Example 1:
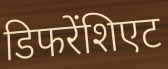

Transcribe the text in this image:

डिफरेंशिएट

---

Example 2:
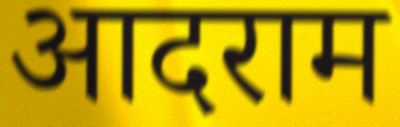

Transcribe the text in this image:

आदराम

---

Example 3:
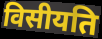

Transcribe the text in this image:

विसीयति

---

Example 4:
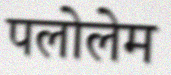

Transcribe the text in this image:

पलोलेम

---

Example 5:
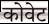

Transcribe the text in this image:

कोवेट